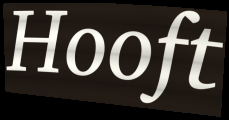
Hooft